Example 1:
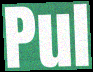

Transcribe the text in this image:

Pul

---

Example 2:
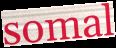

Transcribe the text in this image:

somal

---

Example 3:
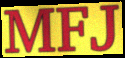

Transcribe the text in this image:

MFJ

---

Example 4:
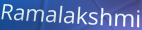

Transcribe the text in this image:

Ramalakshmi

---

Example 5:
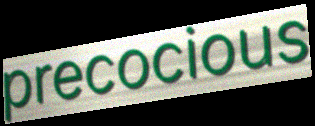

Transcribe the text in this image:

precocious